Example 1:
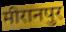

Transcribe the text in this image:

मीरानपुर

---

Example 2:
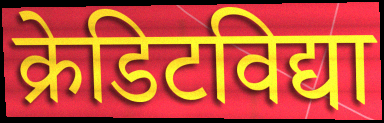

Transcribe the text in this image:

क्रेडिटविद्या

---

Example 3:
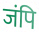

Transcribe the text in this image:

जंपि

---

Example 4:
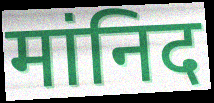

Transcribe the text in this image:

मांनिद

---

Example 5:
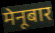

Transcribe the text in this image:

मेनूबार